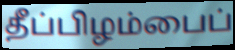
தீப்பிழம்பைப்